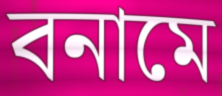
বনামে